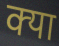
क्‍या